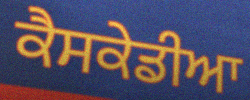
ਕੈਸਕੇਡੀਆ